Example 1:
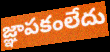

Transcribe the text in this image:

జ్ఞాపకంలేదు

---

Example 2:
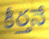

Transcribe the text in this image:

కీర్తనే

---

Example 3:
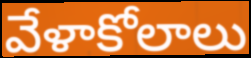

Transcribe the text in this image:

వేళాకోలాలు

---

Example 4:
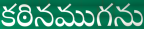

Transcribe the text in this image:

కఠినముగను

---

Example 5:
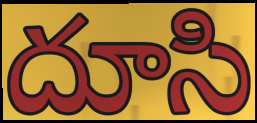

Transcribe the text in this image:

దూసి